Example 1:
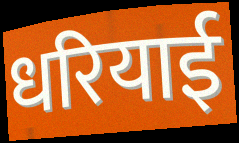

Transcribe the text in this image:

धरियाई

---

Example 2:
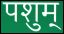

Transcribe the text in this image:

पशुम्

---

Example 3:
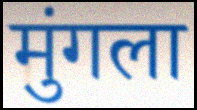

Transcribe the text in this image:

मुंगला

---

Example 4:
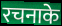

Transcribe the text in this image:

रचनाके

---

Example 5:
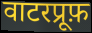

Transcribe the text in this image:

वाटरप्रूफ़